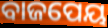
ବାଜପେୟ